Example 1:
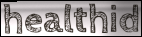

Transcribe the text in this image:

healthid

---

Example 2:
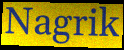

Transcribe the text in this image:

Nagrik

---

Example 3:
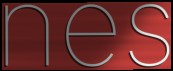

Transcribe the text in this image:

nes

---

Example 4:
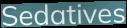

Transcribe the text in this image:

Sedatives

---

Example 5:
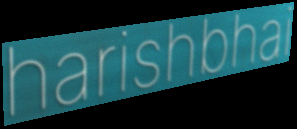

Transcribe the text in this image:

harishbhai